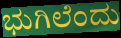
ಭುಗಿಲೆಂದು